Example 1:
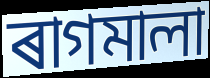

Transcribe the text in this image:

ৰাগমালা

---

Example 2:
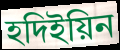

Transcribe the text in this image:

হদিইয়িন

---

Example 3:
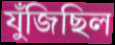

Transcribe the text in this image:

যুঁজিছিল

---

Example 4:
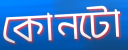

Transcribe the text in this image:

কোনটো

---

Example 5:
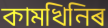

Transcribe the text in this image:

কামখিনিৰ